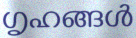
ഗൃഹങ്ങൾ